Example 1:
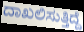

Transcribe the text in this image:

ದಾಖಲಿಸುತ್ತಿದ್ದೆ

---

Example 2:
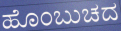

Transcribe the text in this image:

ಹೊಂಬುಚದ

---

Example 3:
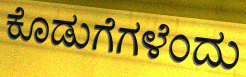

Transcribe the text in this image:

ಕೊಡುಗೆಗಳೆಂದು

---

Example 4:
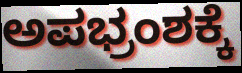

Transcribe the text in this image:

ಅಪಭ್ರಂಶಕ್ಕೆ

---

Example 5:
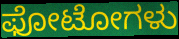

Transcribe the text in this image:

ಫೋಟೋಗಳು